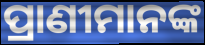
ପ୍ରାଣୀମାନଙ୍କ